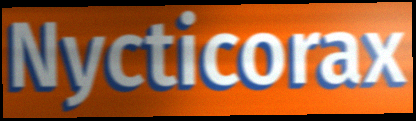
Nycticorax